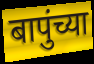
बापुंच्या